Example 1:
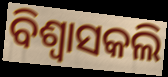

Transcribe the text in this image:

ବିଶ୍ଵାସକଲି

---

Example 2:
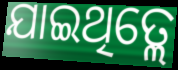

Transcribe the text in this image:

ଯାଇଥିତ୍ଲେ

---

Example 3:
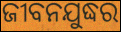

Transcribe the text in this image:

ଜୀବନଯୁଦ୍ଧର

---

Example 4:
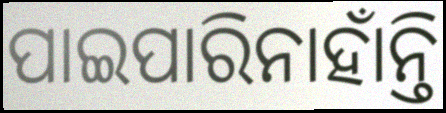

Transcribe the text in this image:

ପାଇପାରିନାହାଁନ୍ତି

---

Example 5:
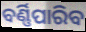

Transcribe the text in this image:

ବର୍ଣ୍ଣିପାରିବ